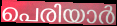
പെരിയാർ